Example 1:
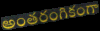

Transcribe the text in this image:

అంతరంగికంగా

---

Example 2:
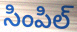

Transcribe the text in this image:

సింపిల్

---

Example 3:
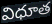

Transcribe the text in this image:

విధూత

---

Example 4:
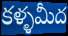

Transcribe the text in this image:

కళ్ళమీద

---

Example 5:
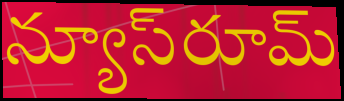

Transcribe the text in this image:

న్యూస్‌రూమ్